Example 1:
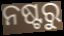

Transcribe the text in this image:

ନଷ୍ଟରୁ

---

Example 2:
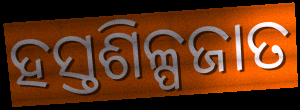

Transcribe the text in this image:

ହସ୍ତଶିଳ୍ପଜାତ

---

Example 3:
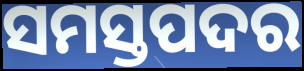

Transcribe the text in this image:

ସମସ୍ତପଦର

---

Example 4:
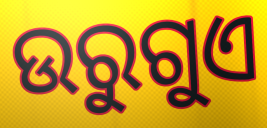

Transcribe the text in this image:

ଉରୁଗୁଏ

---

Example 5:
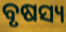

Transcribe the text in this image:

ବୃଷସ୍ୟ